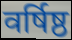
वर्षिष्ठ